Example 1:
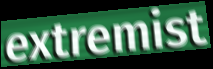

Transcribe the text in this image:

extremist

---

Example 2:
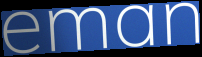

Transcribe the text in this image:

eman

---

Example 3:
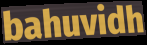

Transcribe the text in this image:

bahuvidh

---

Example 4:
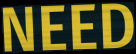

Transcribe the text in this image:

NEED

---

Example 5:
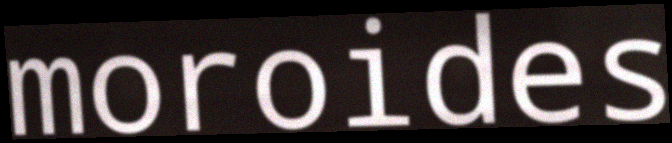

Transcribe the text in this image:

moroides